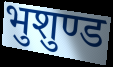
भुशुण्ड